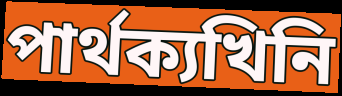
পাৰ্থক্যখিনি